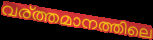
വര്ത്തമാനത്തിലെ